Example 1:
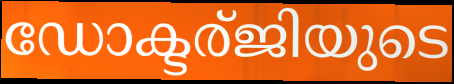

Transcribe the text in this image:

ഡോക്ടര്ജിയുടെ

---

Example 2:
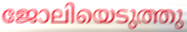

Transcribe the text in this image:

ജോലിയെടുത്തു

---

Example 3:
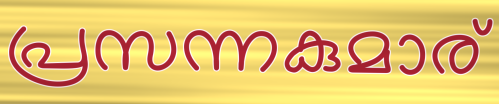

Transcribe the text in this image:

പ്രസന്നകുമാര്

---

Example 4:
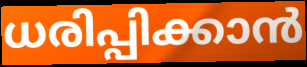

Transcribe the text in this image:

ധരിപ്പിക്കാൻ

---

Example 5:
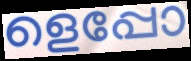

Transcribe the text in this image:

ളെപ്പോ